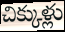
చిక్కుళ్లు